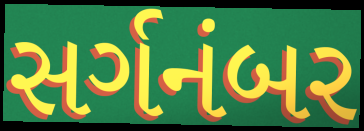
સર્ગનંબર